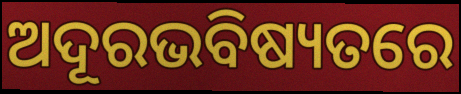
ଅଦୂରଭବିଷ୍ୟତରେ